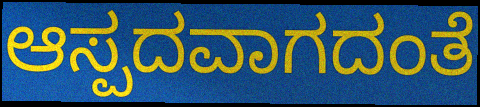
ಆಸ್ಪದವಾಗದಂತೆ